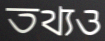
তথ্যও